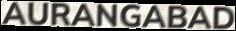
AURANGABAD